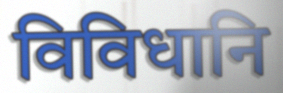
विविधानि